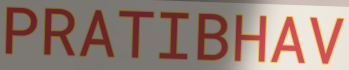
PRATIBHAV